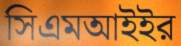
সিএমআইইর